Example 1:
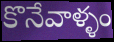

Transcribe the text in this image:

కొనేవాళ్ళం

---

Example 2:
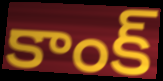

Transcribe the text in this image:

కాంక్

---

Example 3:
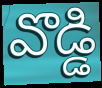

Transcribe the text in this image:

వొడ్డి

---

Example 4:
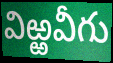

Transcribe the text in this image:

విఱ్ఱవీగు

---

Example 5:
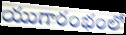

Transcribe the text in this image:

యుగారంభంలో